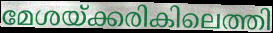
മേശയ്ക്കരികിലെത്തി